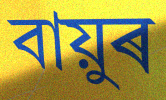
বায়ুৰ